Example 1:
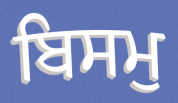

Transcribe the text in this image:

ਬਿਸਮੁ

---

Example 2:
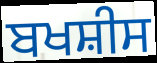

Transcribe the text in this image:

ਬਖਸ਼ੀਸ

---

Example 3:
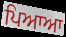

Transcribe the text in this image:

ਪਿਆਆ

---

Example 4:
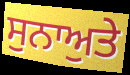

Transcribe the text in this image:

ਸੁਨਾਅੁਤੇ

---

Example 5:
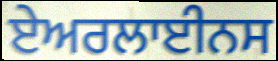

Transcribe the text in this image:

ਏਅਰਲਾਈਨਸ